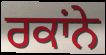
ਰਕਾਂਨੇ